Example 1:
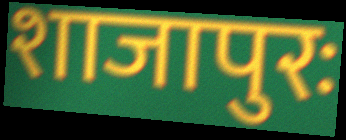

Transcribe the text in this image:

शाजापुरः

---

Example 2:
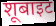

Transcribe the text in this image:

शूबाइट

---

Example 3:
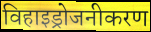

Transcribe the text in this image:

विहाइड्रोजनीकरण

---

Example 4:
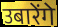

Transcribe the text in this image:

उबारेंगे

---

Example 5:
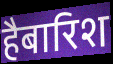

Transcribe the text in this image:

हैबारिश